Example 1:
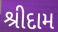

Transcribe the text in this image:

શ્રીદામ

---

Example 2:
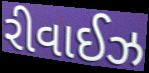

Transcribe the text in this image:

રીવાઈઝ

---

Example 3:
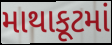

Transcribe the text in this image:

માથાકૂટમાં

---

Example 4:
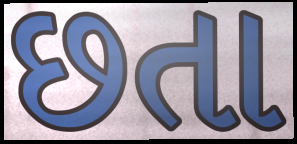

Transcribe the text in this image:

છતા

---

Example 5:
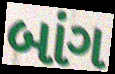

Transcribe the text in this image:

બાંગ